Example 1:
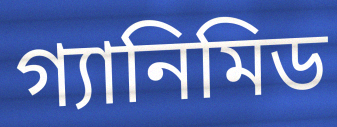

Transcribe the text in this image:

গ্যানিমিড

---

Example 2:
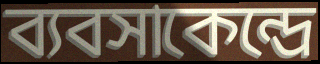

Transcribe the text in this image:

ব্যবসাকেন্দ্রে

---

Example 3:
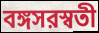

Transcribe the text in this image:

বঙ্গসরস্বতী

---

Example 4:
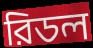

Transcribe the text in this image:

রিডল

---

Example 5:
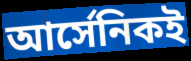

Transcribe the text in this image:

আর্সেনিকই